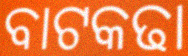
ବାଟକଢା